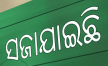
ସଜାଯାଇଛି